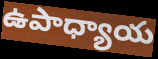
ఉపాధ్యాయ